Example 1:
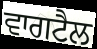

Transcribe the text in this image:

ਵਾਗਟੈਲ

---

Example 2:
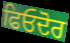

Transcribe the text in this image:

ਫਿਓਦੋਰ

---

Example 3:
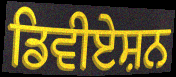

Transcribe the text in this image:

ਡਿਵੀਏਸ਼ਨ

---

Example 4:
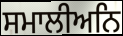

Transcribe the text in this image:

ਸਮਾਲੀਅਨਿ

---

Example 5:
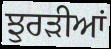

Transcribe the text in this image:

ਝੁਰੜੀਆਂ